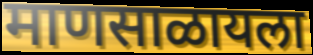
माणसाळायला